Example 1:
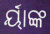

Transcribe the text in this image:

ର୍ୟାଙ୍କ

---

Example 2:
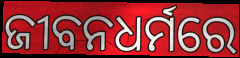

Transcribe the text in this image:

ଜୀବନଧର୍ମରେ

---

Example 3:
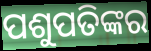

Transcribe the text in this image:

ପଶୁପତିଙ୍କର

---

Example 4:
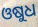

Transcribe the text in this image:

ଓଷୁଧ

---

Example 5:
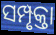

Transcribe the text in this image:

ସମ୍ପୃକ୍ତା